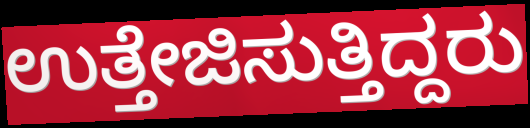
ಉತ್ತೇಜಿಸುತ್ತಿದ್ದರು